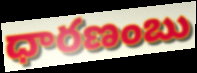
ధారణంబు